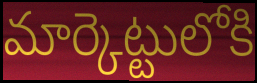
మార్కెట్టులోకి